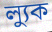
ল্যুক